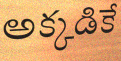
అక్కడికే